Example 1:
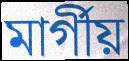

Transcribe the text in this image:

মার্গীয়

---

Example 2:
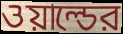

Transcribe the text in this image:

ওয়াল্ডের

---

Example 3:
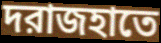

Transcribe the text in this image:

দরাজহাতে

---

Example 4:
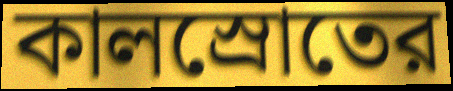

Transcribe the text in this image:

কালস্রোতের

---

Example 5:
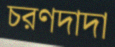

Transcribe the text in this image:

চরণদাদা